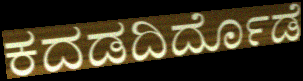
ಕದಡದಿರ್ದೊಡೆ